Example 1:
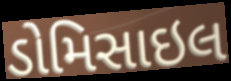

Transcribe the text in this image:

ડોમિસાઇલ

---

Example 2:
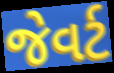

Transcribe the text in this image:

જેવર્ટ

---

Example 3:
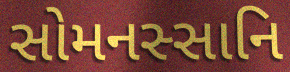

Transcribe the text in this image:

સોમનસ્સાનિ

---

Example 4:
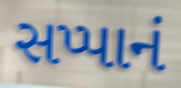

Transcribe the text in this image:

સપ્પાનં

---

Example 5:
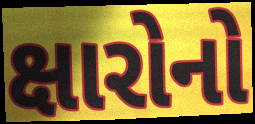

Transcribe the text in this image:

ક્ષારોનો